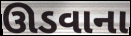
ઊડવાના